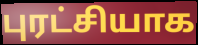
புரட்சியாக